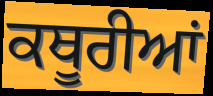
ਕਥੂਰੀਆਂ